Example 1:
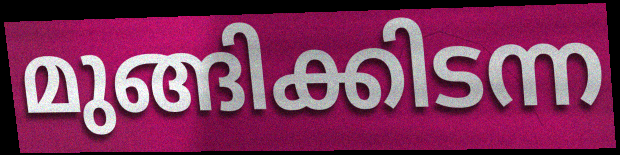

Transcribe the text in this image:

മുങ്ങിക്കിടന്ന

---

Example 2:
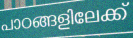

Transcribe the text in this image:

പാഠങ്ങളിലേക്ക്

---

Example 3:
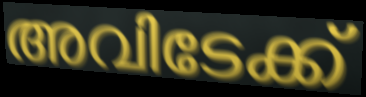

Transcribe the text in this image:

അവിടേക്ക്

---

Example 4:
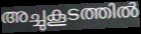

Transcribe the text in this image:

അച്ചുകൂടത്തിൽ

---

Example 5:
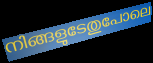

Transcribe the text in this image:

നിങ്ങളുടേതുപോലെ